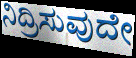
ನಿದ್ರಿಸುವುದೇ